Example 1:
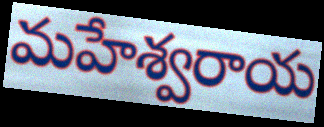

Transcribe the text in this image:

మహేశ్వరాయ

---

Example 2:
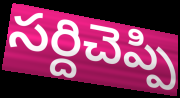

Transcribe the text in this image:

సర్దిచెప్పి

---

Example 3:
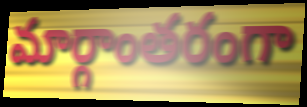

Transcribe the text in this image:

మార్గాంతరంగా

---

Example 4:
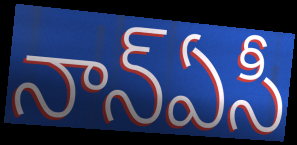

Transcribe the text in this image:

నాన్ఏసీ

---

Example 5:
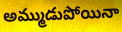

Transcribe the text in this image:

అమ్ముడుపోయినా